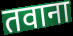
तवाना